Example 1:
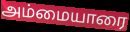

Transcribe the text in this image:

அம்மையாரை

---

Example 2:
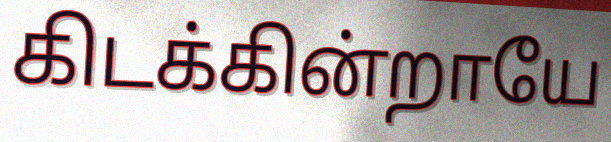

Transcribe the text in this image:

கிடக்கின்றாயே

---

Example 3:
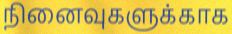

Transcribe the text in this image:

நினைவுகளுக்காக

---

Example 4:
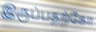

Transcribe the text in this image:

இருப்பதற்கோ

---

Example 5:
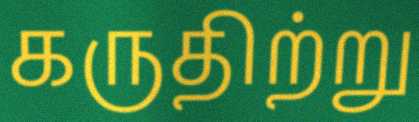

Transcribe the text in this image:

கருதிற்று